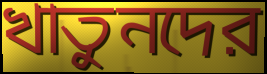
খাতুনদের